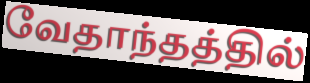
வேதாந்தத்தில்